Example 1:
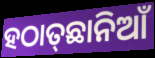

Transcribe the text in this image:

ହଠାତ୍‌ଛାନିଆଁ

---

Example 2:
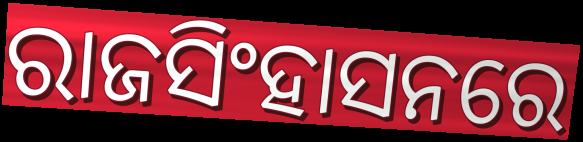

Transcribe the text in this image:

ରାଜସିଂହାସନରେ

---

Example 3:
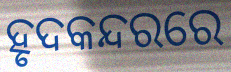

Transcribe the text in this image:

ହୃଦକନ୍ଦରରେ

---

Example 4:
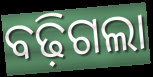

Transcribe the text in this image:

ବଢ଼ିଗଲା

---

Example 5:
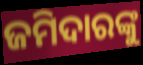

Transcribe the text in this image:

ଜମିଦାରଙ୍କୁ